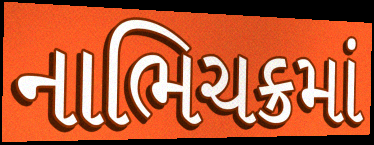
નાભિચક્રમાં